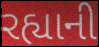
રહ્યાની